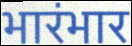
भारंभार